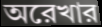
অরেখার